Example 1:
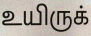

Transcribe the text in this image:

உயிருக்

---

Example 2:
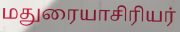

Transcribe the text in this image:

மதுரையாசிரியர்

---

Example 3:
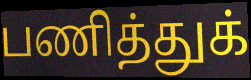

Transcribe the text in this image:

பணித்துக்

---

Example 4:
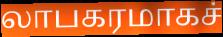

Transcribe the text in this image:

லாபகரமாகச்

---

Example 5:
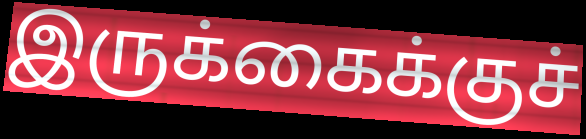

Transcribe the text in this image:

இருக்கைக்குச்